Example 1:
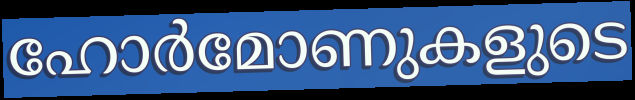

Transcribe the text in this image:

ഹോർമോണുകളുടെ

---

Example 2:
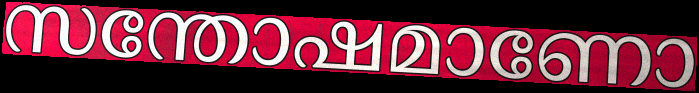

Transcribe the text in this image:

സന്തോഷമാണോ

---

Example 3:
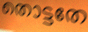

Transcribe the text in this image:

തൊട്ടതേ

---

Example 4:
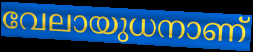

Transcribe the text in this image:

വേലായുധനാണ്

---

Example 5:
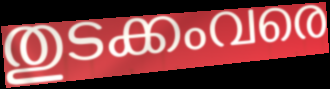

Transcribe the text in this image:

തുടക്കംവരെ